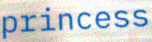
princess